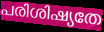
പരിശിഷ്യതേ